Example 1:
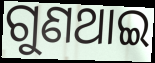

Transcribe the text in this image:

ଗୁଣଥାଇ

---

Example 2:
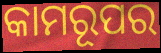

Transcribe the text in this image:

କାମରୂପର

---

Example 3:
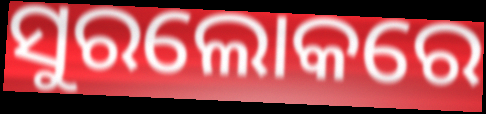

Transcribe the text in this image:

ସୁରଲୋକରେ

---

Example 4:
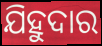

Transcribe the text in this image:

ଯିହୁଦାର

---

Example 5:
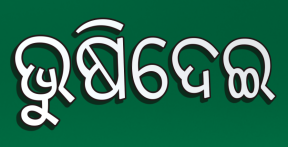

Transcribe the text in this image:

ଭୁଷିଦେଇ